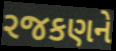
રજકણને